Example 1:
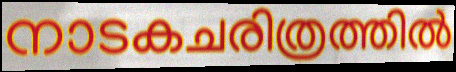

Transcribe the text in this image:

നാടകചരിത്രത്തിൽ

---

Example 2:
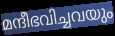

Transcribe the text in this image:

മന്ദീഭവിച്ചവയും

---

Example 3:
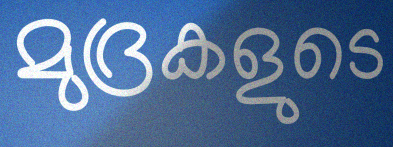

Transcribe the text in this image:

മുദ്രകളുടെ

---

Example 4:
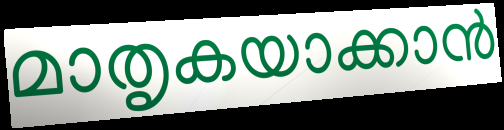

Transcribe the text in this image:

മാതൃകയാക്കാൻ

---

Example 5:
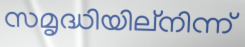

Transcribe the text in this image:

സമൃദ്ധിയില്നിന്ന്